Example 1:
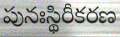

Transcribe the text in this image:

పునఃస్థిరీకరణ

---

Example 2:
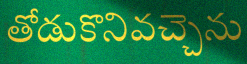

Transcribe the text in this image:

తోడుకొనివచ్చెను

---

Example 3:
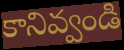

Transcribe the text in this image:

కానివ్వండి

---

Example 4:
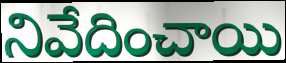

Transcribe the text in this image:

నివేదించాయి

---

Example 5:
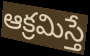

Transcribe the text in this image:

ఆక్రమిస్తే